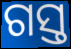
ଗସ୍ତ